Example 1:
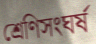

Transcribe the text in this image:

শ্রেণিসংঘর্ষ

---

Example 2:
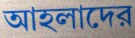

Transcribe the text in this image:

আহলাদের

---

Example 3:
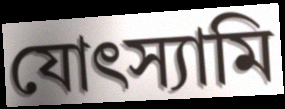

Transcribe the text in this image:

যোৎস্যামি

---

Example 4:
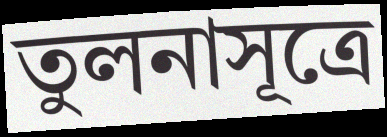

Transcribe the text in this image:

তুলনাসূত্রে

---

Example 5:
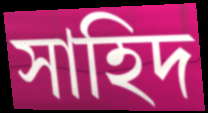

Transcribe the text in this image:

সাহিদ